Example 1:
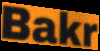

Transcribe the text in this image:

Bakr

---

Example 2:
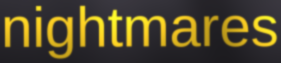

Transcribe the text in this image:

nightmares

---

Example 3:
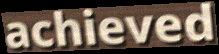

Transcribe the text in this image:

achieved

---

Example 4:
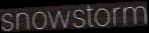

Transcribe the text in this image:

snowstorm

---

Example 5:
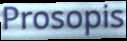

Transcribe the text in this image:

Prosopis